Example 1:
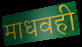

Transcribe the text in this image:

माधवही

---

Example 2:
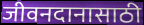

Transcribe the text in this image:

जीवनदानासाठी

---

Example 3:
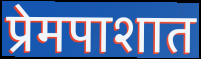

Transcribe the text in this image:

प्रेमपाशात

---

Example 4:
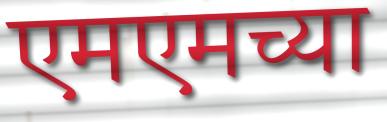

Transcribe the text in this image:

एमएमच्या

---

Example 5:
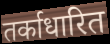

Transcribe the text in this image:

तर्काधारित